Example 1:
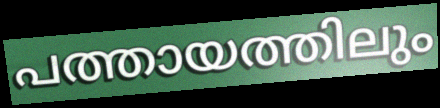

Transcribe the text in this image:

പത്തായത്തിലും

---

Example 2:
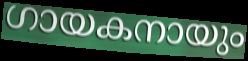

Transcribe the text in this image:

ഗായകനായും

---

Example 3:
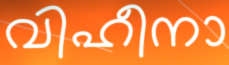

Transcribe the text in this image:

വിഹീനാ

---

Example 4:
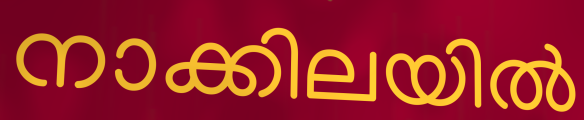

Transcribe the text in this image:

നാക്കിലയിൽ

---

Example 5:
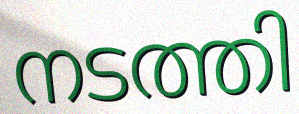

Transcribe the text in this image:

നടത്തി